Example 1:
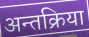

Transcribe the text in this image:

अन्तक्रिया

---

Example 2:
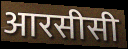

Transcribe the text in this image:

आरसीसी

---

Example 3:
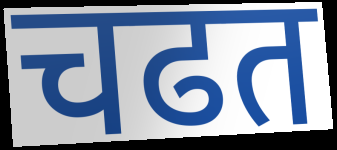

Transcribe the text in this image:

चढत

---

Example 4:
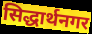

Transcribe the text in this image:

सिद्धार्थनगर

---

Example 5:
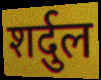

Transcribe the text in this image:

शर्दुल